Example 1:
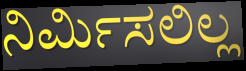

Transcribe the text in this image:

ನಿರ್ಮಿಸಲಿಲ್ಲ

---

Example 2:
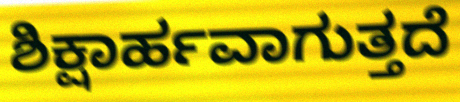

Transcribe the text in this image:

ಶಿಕ್ಷಾರ್ಹವಾಗುತ್ತದೆ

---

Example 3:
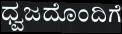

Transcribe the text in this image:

ಧ್ವಜದೊಂದಿಗೆ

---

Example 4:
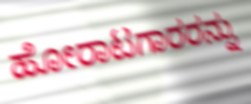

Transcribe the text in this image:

ಹೋರಾಟಗಾರರನ್ನು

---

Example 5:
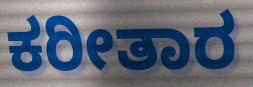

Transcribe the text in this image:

ಕರೀತಾರ